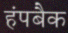
हंपबैक